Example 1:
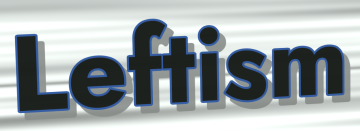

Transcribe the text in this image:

Leftism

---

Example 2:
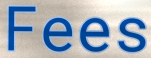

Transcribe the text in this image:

Fees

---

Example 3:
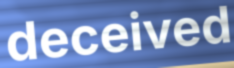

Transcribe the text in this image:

deceived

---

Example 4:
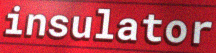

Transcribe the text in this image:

insulator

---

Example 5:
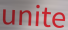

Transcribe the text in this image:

unite